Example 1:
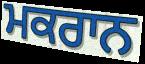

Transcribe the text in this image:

ਮਕਰਾਨ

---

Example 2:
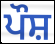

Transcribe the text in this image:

ਪੌਸ਼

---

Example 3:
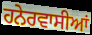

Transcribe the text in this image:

ਹਨੇਰਵਾਸੀਆਂ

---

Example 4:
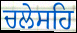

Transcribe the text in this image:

ਚਲੇਸਹਿ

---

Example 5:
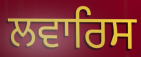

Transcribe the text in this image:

ਲਵਾਰਿਸ